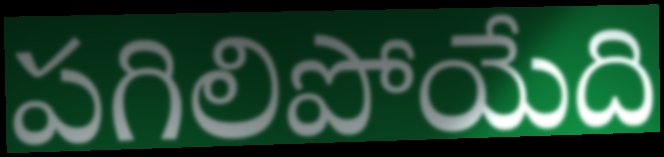
పగిలిపోయేది